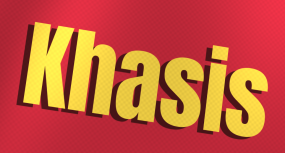
Khasis